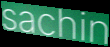
sachin